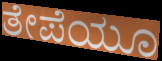
ತೇಪೆಯೂ